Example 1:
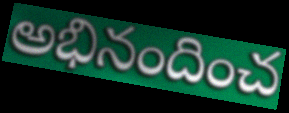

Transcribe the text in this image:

అభినందించ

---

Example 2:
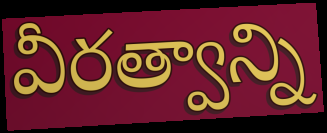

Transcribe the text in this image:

వీరత్వాన్ని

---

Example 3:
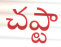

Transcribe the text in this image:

చఎ్టా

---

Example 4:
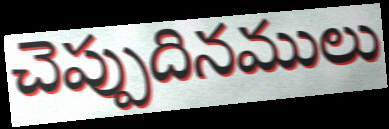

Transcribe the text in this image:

చెప్పుదినములు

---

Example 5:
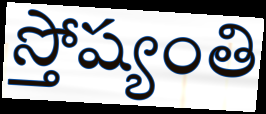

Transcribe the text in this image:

స్తోష్యంతి